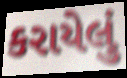
કરાયેલું